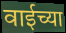
वाईच्या